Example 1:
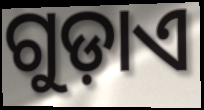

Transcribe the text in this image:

ଗୁଡ଼ାଏ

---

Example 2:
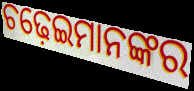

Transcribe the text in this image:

ଚଢ଼େଇମାନଙ୍କର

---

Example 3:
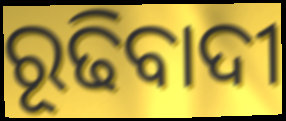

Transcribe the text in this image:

ରୂଢିବାଦୀ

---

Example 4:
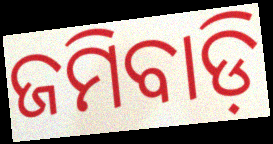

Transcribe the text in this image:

ଜମିବାଡ଼ି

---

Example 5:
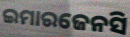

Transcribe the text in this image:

ଇମାରଜେନସି